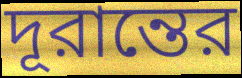
দূরান্তের